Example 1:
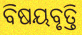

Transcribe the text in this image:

ବିଷୟବୃତ୍ତି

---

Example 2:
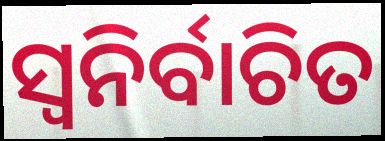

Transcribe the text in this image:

ସ୍ବନିର୍ବାଚିତ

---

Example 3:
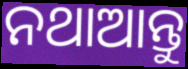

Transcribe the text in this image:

ନଥାଆନ୍ତୁ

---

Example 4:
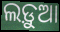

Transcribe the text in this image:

ଲଡ଼ୁଆ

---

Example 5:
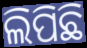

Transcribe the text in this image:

ଲିପିଛି